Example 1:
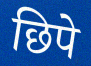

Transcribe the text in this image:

छिपे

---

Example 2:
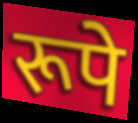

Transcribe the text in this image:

रूपे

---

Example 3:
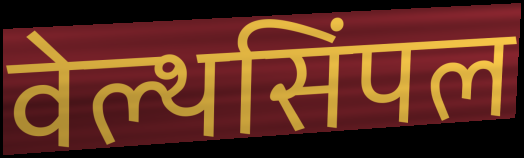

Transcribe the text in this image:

वेल्थसिंपल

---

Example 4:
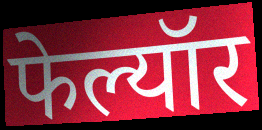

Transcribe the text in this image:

फेल्यॉर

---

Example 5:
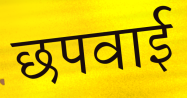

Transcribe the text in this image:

छपवाई